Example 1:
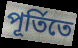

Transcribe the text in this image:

পূর্তিতে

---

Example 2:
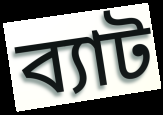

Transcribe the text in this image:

ব্যাট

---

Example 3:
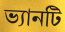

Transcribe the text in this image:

ভ্যানটি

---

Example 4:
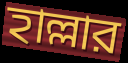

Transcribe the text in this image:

হাল্লার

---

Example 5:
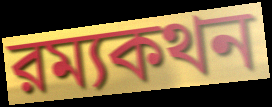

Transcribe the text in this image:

রম্যকথন